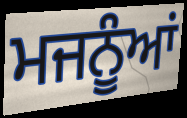
ਮਜਨੂੰਆਂ